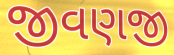
જીવણજી